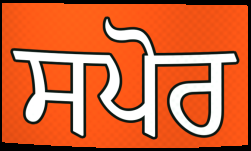
ਸਪੋਰ